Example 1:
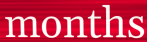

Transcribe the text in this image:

months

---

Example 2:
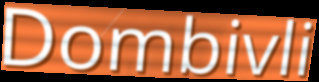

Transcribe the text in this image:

Dombivli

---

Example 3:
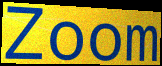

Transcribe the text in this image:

Zoom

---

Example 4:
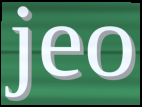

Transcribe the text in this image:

jeo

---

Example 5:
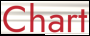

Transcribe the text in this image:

Chart